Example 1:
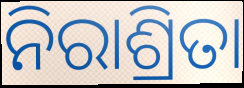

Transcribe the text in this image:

ନିରାଶ୍ରିତା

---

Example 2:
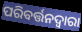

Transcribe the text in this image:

ପରିବର୍ତ୍ତନଦ୍ୱାରା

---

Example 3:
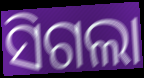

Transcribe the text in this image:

ସିଗଲା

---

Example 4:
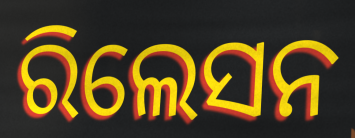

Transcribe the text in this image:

ରିଲେସନ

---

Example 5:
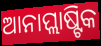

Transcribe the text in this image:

ଆନାପ୍ଲାଷ୍ଟିକ